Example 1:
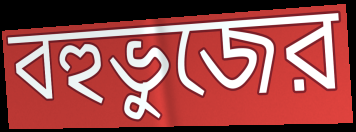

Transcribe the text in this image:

বহুভুজের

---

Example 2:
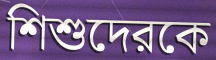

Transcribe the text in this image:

শিশুদেরকে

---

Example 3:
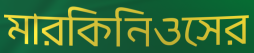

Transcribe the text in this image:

মারকিনিওসের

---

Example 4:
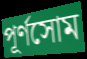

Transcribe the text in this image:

পূর্ণসোম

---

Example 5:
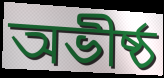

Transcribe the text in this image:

অভীষ্ঠ